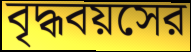
বৃদ্ধবয়সের